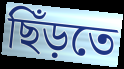
ছিঁড়তে